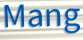
Mang